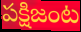
పక్షిజంట